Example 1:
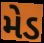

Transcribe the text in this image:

મેડ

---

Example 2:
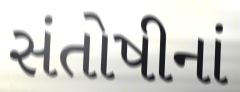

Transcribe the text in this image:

સંતોષીનાં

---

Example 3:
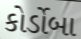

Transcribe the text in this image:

કોર્ડોબા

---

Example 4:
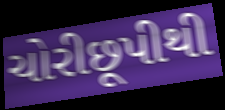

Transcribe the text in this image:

ચોરીછૂપીથી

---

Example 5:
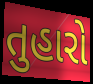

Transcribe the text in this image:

તુહારો